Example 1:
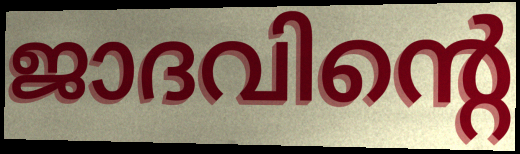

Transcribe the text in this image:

ജാദവിന്റെ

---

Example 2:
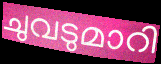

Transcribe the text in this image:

ചുവടുമാറി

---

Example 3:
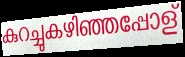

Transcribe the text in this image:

കുറച്ചുകഴിഞ്ഞപ്പോള്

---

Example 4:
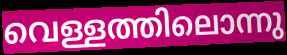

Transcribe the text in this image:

വെള്ളത്തിലൊന്നു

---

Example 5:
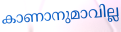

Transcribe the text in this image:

കാണാനുമാവില്ല